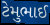
ટેમુભાઈ